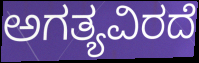
ಅಗತ್ಯವಿರದೆ